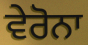
ਵੇਰੋਨਾ